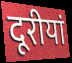
दूरीयां